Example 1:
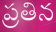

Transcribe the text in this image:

ప్రతిన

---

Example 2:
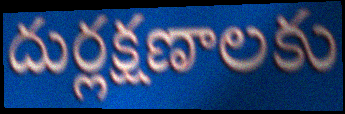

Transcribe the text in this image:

దుర్లక్షణాలకు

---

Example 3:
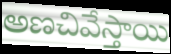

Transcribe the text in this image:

అణచివేస్తాయి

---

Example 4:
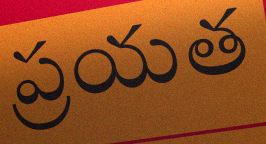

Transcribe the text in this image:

ప్రయత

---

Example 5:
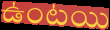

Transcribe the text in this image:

ఉంటయి